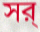
সর্